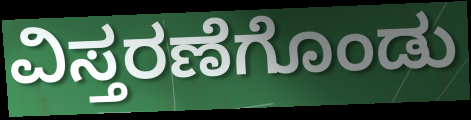
ವಿಸ್ತರಣೆಗೊಂಡು